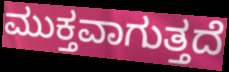
ಮುಕ್ತವಾಗುತ್ತದೆ